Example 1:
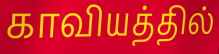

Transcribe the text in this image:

காவியத்தில்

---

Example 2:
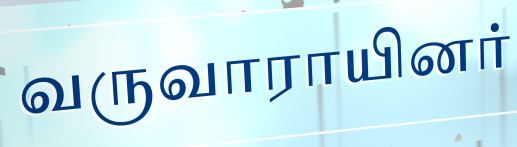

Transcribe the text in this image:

வருவாராயினர்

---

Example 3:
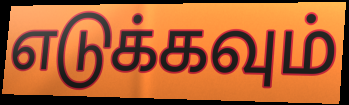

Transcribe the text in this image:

எடுக்கவும்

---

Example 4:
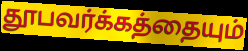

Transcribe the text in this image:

தூபவர்க்கத்தையும்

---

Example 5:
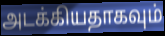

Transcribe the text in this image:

அடக்கியதாகவும்